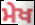
ਮੇਖ